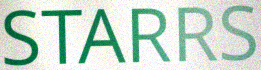
STARRS